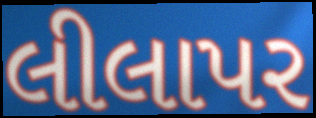
લીલાપર